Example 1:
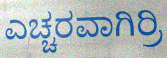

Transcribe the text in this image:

ಎಚ್ಚರವಾಗಿರ್ರಿ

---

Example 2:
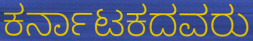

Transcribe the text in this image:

ಕರ್ನಾಟಕದವರು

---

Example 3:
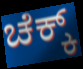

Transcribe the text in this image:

ಚೆಕ್ಕ್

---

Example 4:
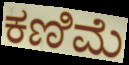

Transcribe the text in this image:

ಕಣಿಮೆ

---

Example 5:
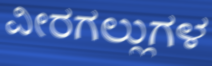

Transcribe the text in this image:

ವೀರಗಲ್ಲುಗಳ